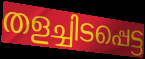
തളച്ചിടപ്പെട്ട